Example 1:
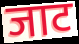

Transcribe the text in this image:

जाट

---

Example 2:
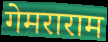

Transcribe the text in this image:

गेमराराम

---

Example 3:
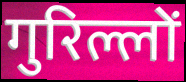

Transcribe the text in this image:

गुरिल्लों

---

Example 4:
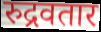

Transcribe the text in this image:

रुद्रवतार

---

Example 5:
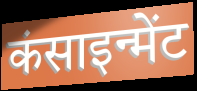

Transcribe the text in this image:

कंसाइन्मेंट